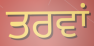
ਤਰਵਾਂ